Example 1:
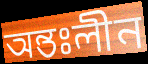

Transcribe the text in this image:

অন্তঃলীন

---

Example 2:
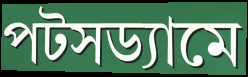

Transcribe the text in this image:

পটসড্যামে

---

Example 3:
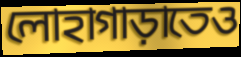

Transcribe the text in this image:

লোহাগাড়াতেও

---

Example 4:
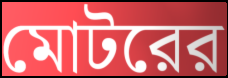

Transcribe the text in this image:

মোটরের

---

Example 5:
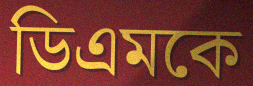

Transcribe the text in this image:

ডিএমকে